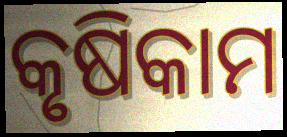
କୃଷିକାମ